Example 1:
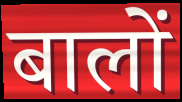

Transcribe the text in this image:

बालों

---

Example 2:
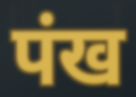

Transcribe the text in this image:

पंख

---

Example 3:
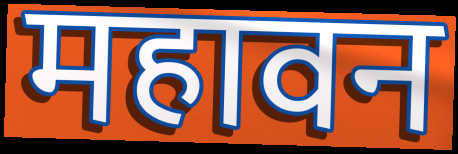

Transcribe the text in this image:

महावन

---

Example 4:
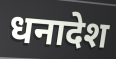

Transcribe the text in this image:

धनादेश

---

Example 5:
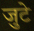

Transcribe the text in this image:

जुटे